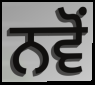
ਨਵੋਂ